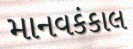
માનવકંકાલ